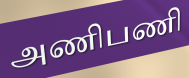
அணிபணி